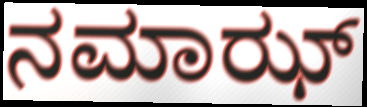
ನಮಾಝ್